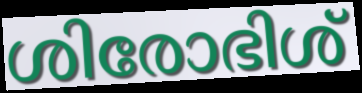
ശിരോഭിശ്